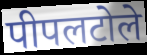
पीपलटोले